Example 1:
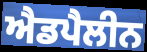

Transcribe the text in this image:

ਐਡਪੈਲੀਨ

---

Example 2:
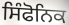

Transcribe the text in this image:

ਸਿੰਫੋਨਿਕ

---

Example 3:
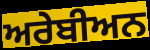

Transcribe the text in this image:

ਅਰੇਬੀਅਨ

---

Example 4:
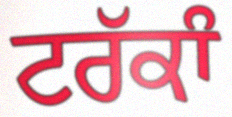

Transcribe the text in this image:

ਟਰੱਕਾੰ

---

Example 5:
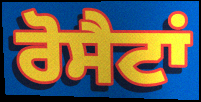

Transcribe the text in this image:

ਰੋਸੈਟਾਂ